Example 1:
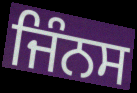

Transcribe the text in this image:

ਜਿੰਨਸ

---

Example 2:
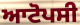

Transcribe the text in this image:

ਆਟੋਪਸੀ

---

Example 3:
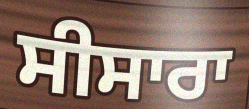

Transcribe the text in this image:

ਸੀਸਾਰਾ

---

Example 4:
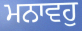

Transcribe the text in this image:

ਮਨਾਵਹੁ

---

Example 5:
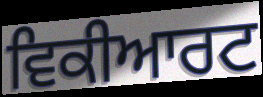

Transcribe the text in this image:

ਵਿਕੀਆਰਟ